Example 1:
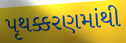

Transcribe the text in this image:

પૃથક્કરણમાંથી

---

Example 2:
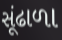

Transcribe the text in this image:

સૂંઢાળા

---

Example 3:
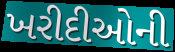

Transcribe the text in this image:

ખરીદીઓની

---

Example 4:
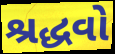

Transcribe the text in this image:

શ્રદ્ધવો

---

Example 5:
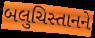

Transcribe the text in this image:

બલુચિસ્તાનને